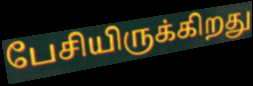
பேசியிருக்கிறது